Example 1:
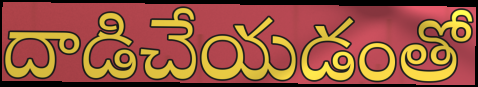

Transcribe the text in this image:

దాడిచేయడంతో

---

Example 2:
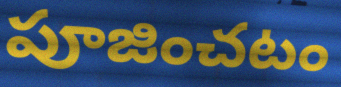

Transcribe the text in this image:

పూజించటం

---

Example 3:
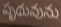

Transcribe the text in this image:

పృథువును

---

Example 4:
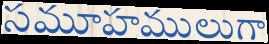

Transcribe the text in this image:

సమూహములుగా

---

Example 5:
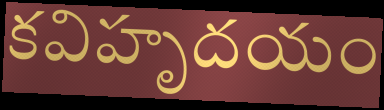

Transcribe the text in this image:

కవిహృదయం